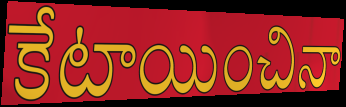
కేటాయించినా